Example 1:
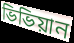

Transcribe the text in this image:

ভিভিয়ান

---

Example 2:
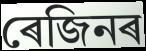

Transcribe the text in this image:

ৰেজিনৰ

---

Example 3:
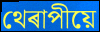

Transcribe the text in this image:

থেৰাপীয়ে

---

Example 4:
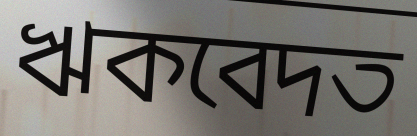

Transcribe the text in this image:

ঋকবেদত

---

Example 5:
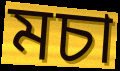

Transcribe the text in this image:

মচা